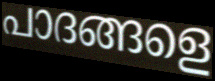
പാദങ്ങളെ